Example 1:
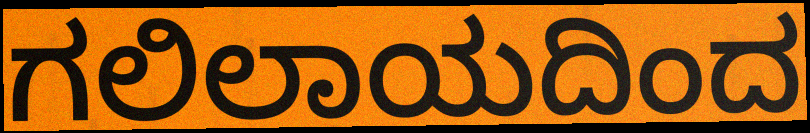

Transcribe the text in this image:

ಗಲಿಲಾಯದಿಂದ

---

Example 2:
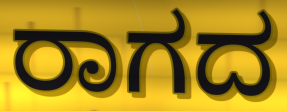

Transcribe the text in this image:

ರಾಗದ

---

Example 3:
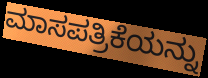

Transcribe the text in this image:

ಮಾಸಪತ್ರಿಕೆಯನ್ನು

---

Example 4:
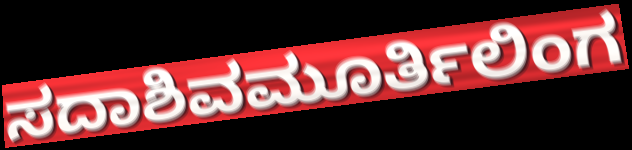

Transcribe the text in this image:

ಸದಾಶಿವಮೂರ್ತಿಲಿಂಗ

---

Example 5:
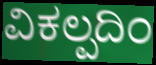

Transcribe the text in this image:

ವಿಕಲ್ಪದಿಂ